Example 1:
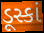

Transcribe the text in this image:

ડૂસ્કાં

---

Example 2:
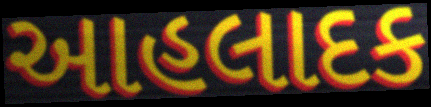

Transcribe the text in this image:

આહલાદક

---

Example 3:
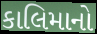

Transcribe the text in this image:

કાલિમાનો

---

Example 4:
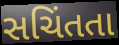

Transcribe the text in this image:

સચિંતતા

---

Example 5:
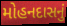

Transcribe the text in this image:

મોહનદાસનું